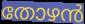
തോഴൻ